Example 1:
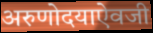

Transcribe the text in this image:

अरुणोदयाऐवजी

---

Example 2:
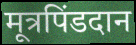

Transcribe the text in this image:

मूत्रपिंडदान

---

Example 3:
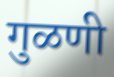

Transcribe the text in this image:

गुळणी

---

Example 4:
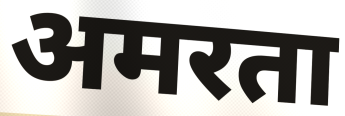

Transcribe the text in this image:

अमरता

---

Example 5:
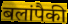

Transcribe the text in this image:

बलांपैकी